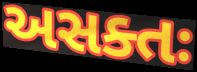
અસક્તઃ